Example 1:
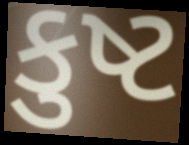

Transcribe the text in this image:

કુષ્ટ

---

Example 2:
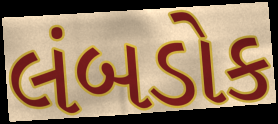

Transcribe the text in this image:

લંબડોક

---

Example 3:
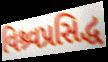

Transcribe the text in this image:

વિશ્ર્વપ્રસિદ્ધ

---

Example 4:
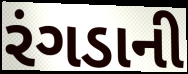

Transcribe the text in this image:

રંગડાની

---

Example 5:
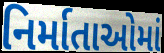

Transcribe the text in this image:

નિર્માતાઓમાં